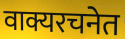
वाक्यरचनेत